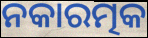
ନକାରତ୍ମକ